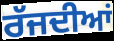
ਰੱਜਦੀਆਂ